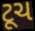
ટૂચ